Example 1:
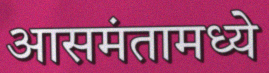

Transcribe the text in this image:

आसमंतामध्ये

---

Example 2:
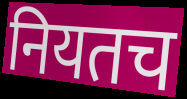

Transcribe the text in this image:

नियतच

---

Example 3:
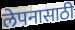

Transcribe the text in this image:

लेपनासाठी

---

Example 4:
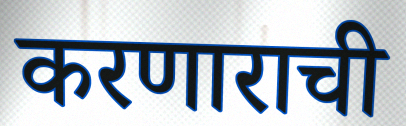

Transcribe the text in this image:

करणाराची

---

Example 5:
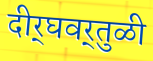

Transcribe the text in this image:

दीर्घवर्तुळी